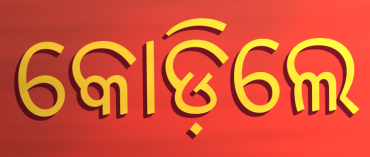
କୋଡ଼ିଲେ